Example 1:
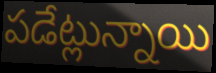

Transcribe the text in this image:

పడేట్లున్నాయి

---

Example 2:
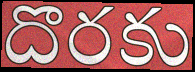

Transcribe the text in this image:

దొరకు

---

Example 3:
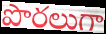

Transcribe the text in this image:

పొరలుగా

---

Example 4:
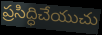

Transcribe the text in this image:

ప్రసిద్ధిచేయుచు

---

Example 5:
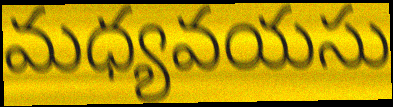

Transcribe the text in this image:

మధ్యవయసు